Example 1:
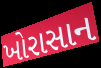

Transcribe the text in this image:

ખોરાસાન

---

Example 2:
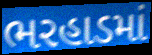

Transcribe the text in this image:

ભરહાડમાં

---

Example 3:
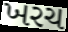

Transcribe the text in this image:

ખરચ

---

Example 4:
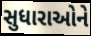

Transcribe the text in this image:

સુધારાઓને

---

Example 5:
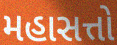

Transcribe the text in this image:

મહાસત્તો